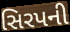
સિરપની